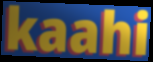
kaahi